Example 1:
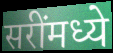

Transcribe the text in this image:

सरींमध्ये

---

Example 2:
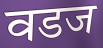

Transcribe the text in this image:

वडज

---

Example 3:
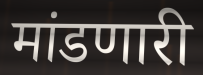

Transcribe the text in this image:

मांडणारी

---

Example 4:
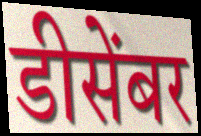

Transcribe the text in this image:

डीसेंबर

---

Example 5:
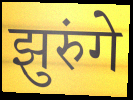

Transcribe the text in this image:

झुरुंगे